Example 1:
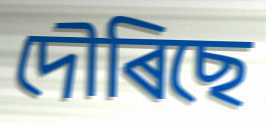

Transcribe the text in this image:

দৌৰিছে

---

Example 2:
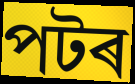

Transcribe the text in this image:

পটৰ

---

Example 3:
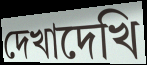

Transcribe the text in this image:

দেখাদেখি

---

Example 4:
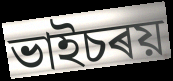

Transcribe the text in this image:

ভাইচৰয়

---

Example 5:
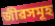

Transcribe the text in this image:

জীৱসমূহ